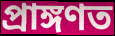
প্ৰাঙ্গণত